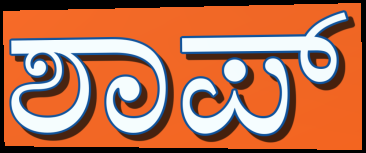
ಶಾಪ್